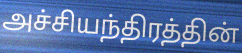
அச்சியந்திரத்தின்